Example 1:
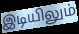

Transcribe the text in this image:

இடியிலும்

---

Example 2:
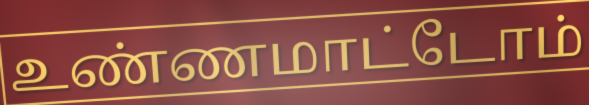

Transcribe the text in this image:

உண்ணமாட்டோம்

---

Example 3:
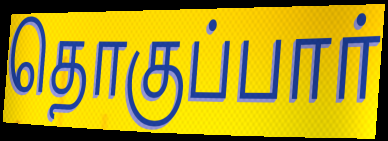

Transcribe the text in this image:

தொகுப்பார்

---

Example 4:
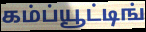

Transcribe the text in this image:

கம்ப்யூட்டிங்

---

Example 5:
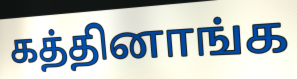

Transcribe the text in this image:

கத்தினாங்க